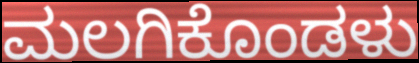
ಮಲಗಿಕೊಂಡಳು